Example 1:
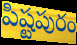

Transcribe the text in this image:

పిష్టపురం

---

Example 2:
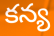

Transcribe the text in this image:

కన్య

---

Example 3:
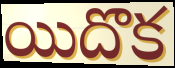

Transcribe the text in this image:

యిదొక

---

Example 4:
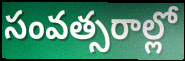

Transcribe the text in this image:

సంవత్సరాల్లో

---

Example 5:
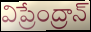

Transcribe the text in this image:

విప్రేంద్రాన్